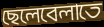
ছেলেবেলাতে